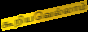
கூறியவெல்லாம்